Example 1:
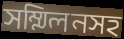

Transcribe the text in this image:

সম্মিলনসহ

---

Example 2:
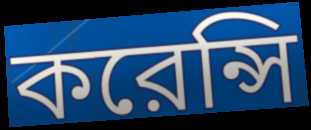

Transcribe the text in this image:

করেন্সি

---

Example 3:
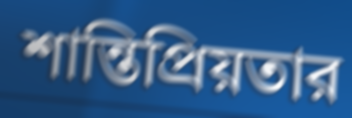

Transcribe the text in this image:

শান্তিপ্রিয়তার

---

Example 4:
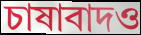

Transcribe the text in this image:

চাষাবাদও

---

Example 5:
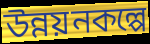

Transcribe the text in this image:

উন্নয়নকল্পে